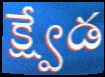
క్ష్వేడ